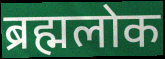
ब्रह्मलोक